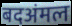
बदअंमल